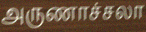
அருணாச்சலா